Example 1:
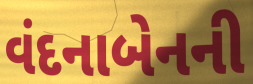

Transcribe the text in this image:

વંદનાબેનની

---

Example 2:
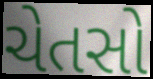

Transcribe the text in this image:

ચેતસો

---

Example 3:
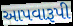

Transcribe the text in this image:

આપવારૂપી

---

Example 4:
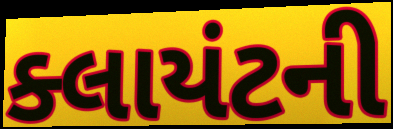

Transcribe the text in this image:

ક્લાયંટની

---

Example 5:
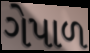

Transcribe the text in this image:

ગેપાળ